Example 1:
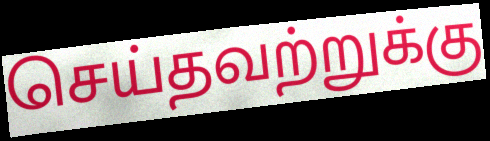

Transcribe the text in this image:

செய்தவற்றுக்கு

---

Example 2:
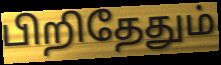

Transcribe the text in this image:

பிறிதேதும்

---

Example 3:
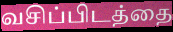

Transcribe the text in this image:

வசிப்பிடத்தை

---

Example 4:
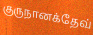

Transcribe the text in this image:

குருநானக்தேவ்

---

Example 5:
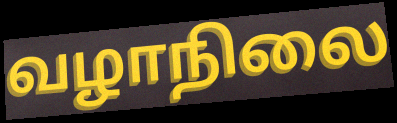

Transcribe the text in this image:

வழாநிலை